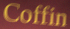
Coffin